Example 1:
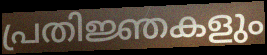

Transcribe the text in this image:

പ്രതിജ്ഞകളും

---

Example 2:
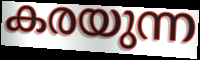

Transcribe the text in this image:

കരയുന്ന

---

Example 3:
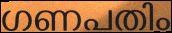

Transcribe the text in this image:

ഗണപതിം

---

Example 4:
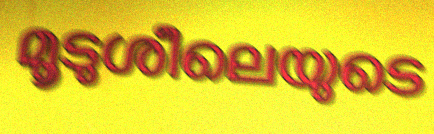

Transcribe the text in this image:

മൂടുശീലെയുടെ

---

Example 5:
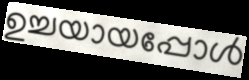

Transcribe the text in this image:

ഉച്ചയായപ്പോൾ